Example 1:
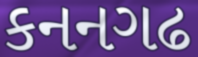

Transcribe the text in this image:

કનનગઢ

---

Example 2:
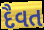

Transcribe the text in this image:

દૈવત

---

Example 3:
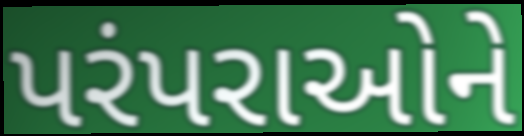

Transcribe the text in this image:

પરંપરાઓને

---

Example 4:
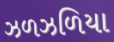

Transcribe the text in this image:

ઝળઝળિયા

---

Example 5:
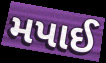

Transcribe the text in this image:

મપાઈ